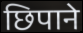
छिपाने